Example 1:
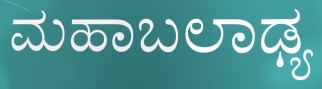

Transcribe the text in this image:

ಮಹಾಬಲಾಢ್ಯ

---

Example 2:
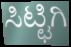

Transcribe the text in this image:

ಸಿಟ್ಟಿಗಿ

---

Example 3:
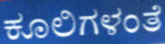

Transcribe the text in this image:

ಕೂಲಿಗಳಂತೆ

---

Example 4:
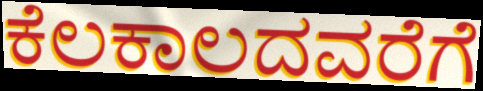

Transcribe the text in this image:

ಕೆಲಕಾಲದವರೆಗೆ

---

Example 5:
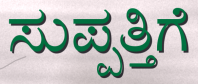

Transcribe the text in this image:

ಸುಪ್ಪತ್ತಿಗೆ